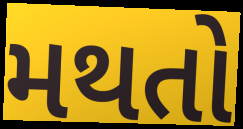
મથતો